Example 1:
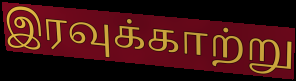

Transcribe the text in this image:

இரவுக்காற்று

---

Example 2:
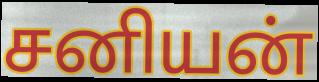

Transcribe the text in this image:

சனியன்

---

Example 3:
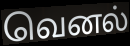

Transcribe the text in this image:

வெனல்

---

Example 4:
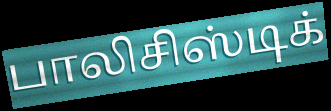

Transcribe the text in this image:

பாலிசிஸ்டிக்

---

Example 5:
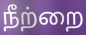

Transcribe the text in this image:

நீற்றை